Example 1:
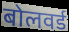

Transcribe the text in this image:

बोलवर्ड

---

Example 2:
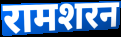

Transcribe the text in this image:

रामशरन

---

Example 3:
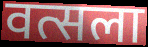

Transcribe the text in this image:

वत्सला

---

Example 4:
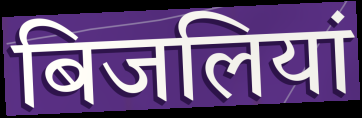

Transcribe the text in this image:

बिजलियां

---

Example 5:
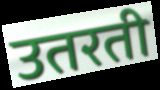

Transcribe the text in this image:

उतरती